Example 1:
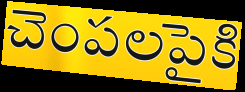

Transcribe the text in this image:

చెంపలపైకి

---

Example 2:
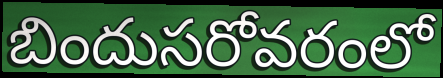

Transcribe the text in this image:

బిందుసరోవరంలో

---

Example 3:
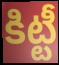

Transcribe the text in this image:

కిట్టీ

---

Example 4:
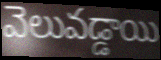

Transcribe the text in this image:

వెలువడ్డాయి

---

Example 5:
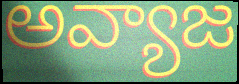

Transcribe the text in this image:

అవ్యాజ